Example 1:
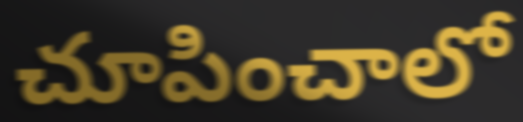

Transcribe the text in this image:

చూపించాలో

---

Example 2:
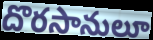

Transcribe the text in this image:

దొరసానులూ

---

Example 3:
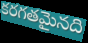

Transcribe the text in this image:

కరగతమైనది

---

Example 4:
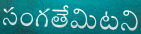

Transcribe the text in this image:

సంగతేమిటని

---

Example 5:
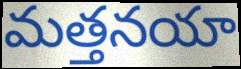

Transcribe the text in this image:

మత్తనయా